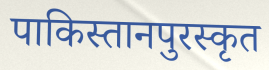
पाकिस्तानपुरस्कृत